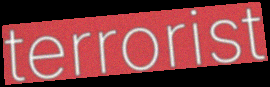
terrorist